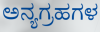
ಅನ್ಯಗ್ರಹಗಳ